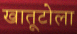
खातूटोला